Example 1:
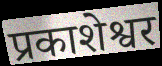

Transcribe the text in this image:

प्रकाशेश्वर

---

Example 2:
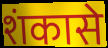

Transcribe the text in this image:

शंकासे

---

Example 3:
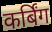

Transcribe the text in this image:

कर्बिंग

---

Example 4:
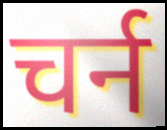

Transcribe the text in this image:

चर्न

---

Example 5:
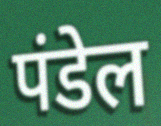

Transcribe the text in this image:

पंडेल